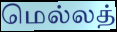
மெல்லத்